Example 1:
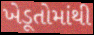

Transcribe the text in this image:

ખેડૂતોમાંથી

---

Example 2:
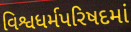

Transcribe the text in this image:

વિશ્વધર્મપરિષદમાં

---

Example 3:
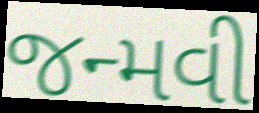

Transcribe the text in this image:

જન્મવી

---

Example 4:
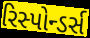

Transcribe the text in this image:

રિસ્પોન્ડર્સ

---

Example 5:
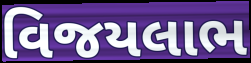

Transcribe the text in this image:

વિજયલાભ